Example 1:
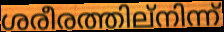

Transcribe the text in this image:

ശരീരത്തില്നിന്ന്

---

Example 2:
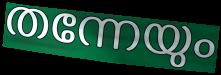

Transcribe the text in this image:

തന്നേയും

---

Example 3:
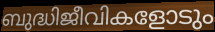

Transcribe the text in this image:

ബുദ്ധിജീവികളോടും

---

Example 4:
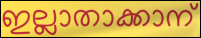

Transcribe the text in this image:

ഇല്ലാതാക്കാന്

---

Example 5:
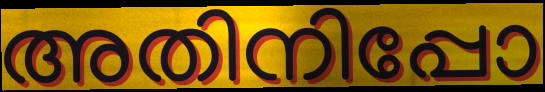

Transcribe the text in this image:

അതിനിപ്പോ